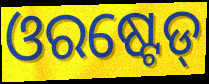
ଓରଷ୍ଟେଡ୍